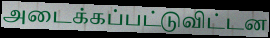
அடைக்கப்பட்டுவிட்டன